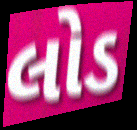
લોડ